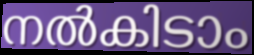
നൽകിടാം